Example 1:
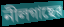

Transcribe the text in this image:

নীলগাছের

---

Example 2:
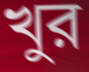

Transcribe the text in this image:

খুর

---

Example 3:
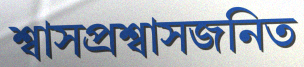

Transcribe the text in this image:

শ্বাসপ্রশ্বাসজনিত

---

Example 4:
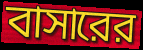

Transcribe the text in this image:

বাসারের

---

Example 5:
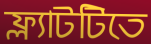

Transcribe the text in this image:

ফ্ল্যাটটিতে